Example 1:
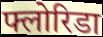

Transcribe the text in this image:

फ्लोरिडा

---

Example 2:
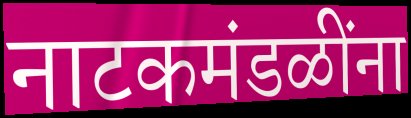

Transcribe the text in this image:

नाटकमंडळींना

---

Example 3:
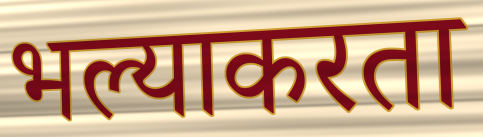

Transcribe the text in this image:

भल्याकरता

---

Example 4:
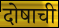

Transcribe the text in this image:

दोषाची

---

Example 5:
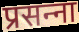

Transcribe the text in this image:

प्रसन्ना